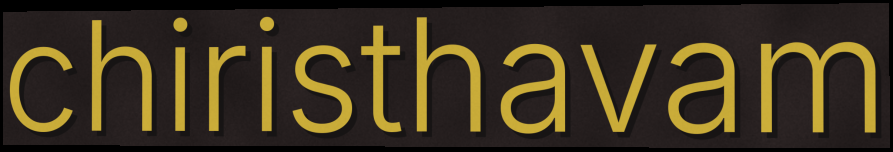
chiristhavam